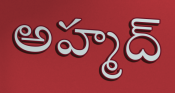
అహ్మద్